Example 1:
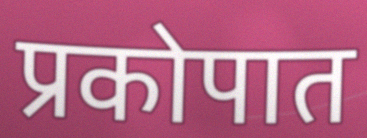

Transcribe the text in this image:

प्रकोपात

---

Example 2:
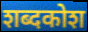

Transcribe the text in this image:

शब्दकोश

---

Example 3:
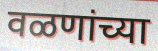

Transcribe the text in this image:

वळणांच्या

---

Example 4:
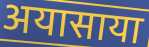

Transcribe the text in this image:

अयासाया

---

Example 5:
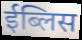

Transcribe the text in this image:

ईब्लिस